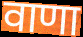
वाणा